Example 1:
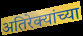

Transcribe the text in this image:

अतिरेक्‍यांच्या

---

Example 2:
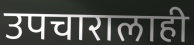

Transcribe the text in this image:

उपचारालाही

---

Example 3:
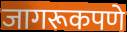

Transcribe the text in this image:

जागरूकपणे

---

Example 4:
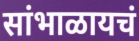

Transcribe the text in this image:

सांभाळायचं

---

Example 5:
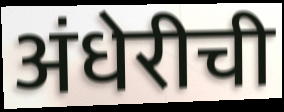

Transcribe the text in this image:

अंधेरीची